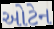
ઓટેન